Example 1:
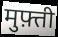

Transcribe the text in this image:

मुफ़्ती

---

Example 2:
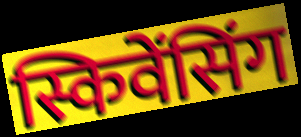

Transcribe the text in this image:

स्किवेंसिंग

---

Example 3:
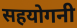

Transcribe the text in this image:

सहयोगनी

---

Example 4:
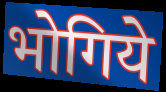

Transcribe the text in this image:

भोगिये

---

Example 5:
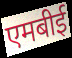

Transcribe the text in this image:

एमबीई